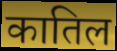
कातिल